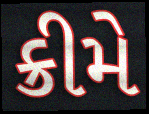
ક્રીમે